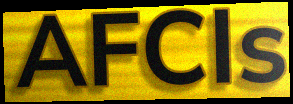
AFCIs